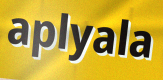
aplyala